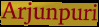
Arjunpuri